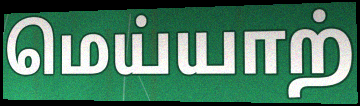
மெய்யாற்